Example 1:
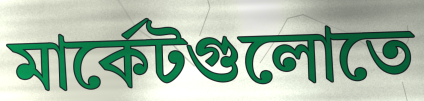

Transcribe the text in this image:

মার্কেটগুলোতে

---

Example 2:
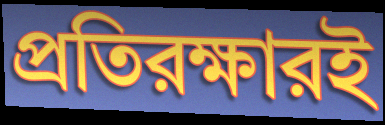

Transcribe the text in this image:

প্রতিরক্ষারই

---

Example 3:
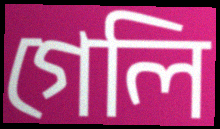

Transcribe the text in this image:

গেলি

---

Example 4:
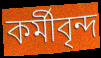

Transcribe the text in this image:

কর্মীবৃন্দ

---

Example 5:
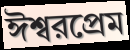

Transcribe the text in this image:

ঈশ্বরপ্রেম